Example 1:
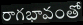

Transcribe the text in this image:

రాగభావంతో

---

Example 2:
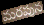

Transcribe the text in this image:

మరపున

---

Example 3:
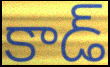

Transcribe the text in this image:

కాడ్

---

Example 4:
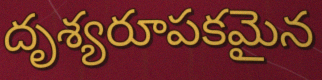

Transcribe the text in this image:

దృశ్యరూపకమైన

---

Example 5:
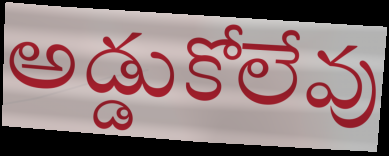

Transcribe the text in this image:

అడ్డుకోలేవు